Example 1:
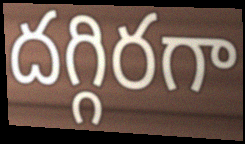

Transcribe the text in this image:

దగ్గిరగా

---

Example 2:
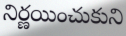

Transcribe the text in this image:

నిర్ణయించుకుని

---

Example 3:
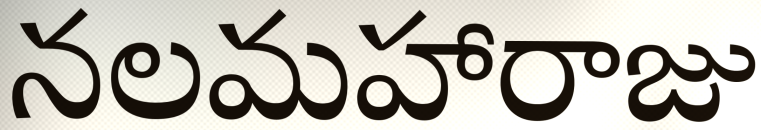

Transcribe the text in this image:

నలమహారాజు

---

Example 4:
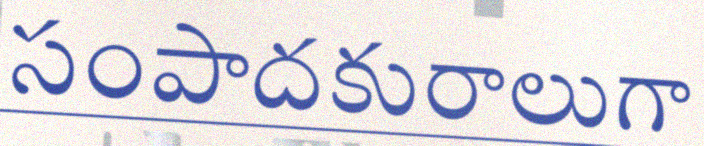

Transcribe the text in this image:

సంపాదకురాలుగా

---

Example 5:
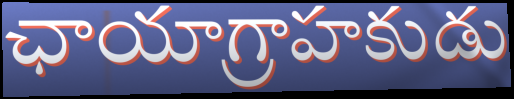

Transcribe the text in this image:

ఛాయాగ్రాహకుడు